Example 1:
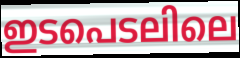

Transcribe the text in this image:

ഇടപെടലിലെ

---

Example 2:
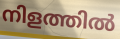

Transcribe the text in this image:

നിളത്തിൽ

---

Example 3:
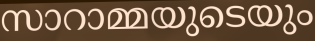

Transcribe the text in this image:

സാറാമ്മയുടെയും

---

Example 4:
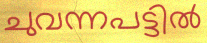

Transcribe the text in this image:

ചുവന്നപട്ടിൽ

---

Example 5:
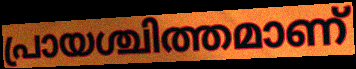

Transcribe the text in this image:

പ്രായശ്ചിത്തമാണ്